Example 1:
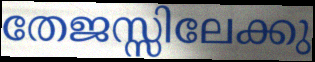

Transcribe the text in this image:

തേജസ്സിലേക്കു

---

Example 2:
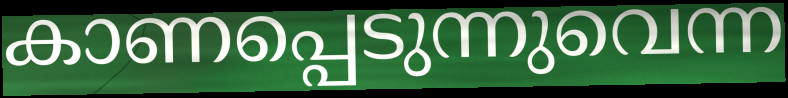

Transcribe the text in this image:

കാണപ്പെടുന്നുവെന്ന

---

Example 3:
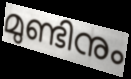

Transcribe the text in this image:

മുണ്ടിനും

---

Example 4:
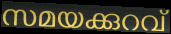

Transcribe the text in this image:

സമയക്കുറവ്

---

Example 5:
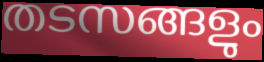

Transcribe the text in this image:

തടസങ്ങളും